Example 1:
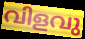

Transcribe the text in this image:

വിളവു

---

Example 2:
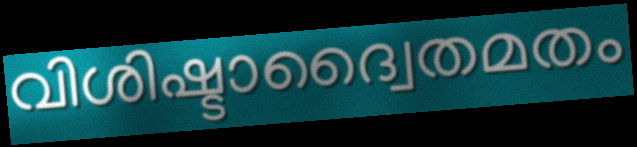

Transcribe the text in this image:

വിശിഷ്ടാദ്വൈതമതം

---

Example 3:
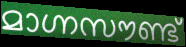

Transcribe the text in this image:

മാഗ്നസൗണ്ട്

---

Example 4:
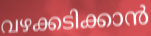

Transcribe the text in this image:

വഴക്കടിക്കാൻ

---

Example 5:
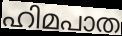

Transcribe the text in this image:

ഹിമപാത